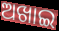
ଅଖାଇ